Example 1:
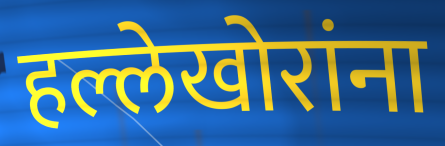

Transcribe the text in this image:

हल्लेखोरांना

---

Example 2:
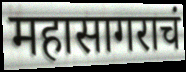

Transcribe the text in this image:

महासागराचं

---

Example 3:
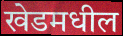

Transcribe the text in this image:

खेडमधील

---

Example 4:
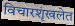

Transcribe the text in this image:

विचारशृंखलेत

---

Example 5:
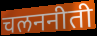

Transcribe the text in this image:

चलननीती